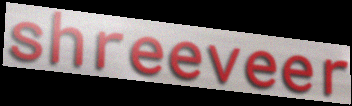
shreeveer